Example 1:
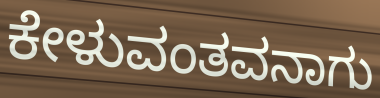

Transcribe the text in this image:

ಕೇಳುವಂತವನಾಗು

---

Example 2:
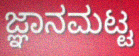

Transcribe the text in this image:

ಜ್ಞಾನಮಟ್ಟ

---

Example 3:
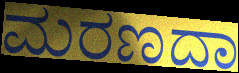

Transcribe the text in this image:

ಮರಣದಾ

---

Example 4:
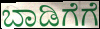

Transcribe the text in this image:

ಬಾಡಿಗೆಗೆ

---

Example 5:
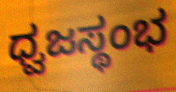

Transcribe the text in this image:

ಧ್ವಜಸ್ಥಂಭ